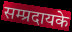
सम्प्रदायके